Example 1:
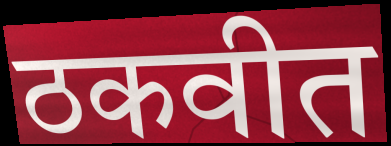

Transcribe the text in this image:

ठकवीत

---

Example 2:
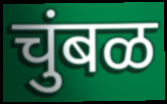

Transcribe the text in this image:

चुंबळ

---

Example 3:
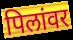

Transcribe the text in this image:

पिलांवर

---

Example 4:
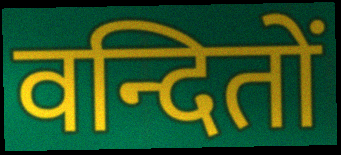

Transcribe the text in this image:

वन्दितों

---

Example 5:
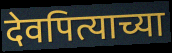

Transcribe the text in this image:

देवपित्याच्या